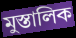
মুস্তালিক